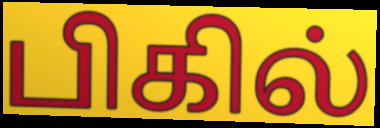
பிகில்